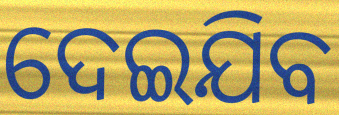
ଦେଇଯିବ